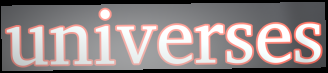
universes